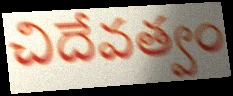
చిదేవత్వం